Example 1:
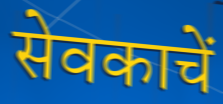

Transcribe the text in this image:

सेवकाचें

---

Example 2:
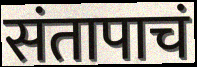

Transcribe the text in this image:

संतापाचं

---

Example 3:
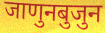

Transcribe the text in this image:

जाणुनबुजुन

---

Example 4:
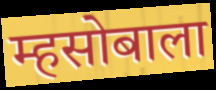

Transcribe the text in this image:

म्हसोबाला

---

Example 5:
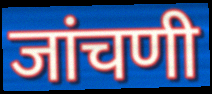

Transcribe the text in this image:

जांचणी